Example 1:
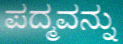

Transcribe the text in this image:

ಪದ್ಮವನ್ನು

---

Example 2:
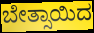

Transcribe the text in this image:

ಬೇತ್ಸಾಯಿದ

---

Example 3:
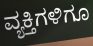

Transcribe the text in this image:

ವ್ಯಕ್ತಿಗಳಿಗೂ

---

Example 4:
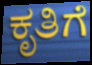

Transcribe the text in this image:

ಕೃತಿಗೆ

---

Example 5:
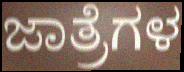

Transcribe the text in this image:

ಜಾತ್ರೆಗಳ